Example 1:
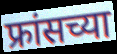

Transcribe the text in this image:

फ्रांसच्या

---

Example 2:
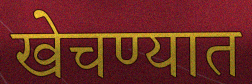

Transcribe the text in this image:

खेचण्यात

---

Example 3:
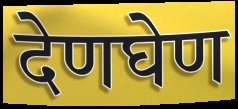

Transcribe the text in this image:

देणघेण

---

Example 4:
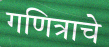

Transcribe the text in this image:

गणित्राचे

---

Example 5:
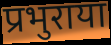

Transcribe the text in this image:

प्रभुराया